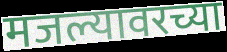
मजल्यावरच्या